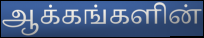
ஆக்கங்களின்